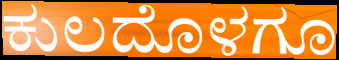
ಕುಲದೊಳಗೂ